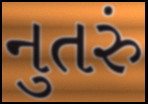
નુતરું